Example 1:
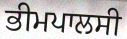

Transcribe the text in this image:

ਭੀਮਪਾਲਸੀ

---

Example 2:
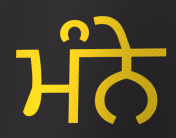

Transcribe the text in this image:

ਮੰਨੇ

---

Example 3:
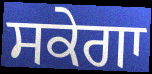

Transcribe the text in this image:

ਸਕੇਗਾ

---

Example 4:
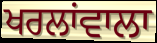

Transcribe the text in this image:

ਖਰਲਾਂਵਾਲਾ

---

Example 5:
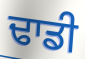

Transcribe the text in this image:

ਢਾਡੀ